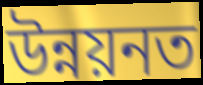
উন্নয়নত